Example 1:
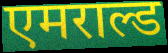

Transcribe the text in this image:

एमराल्‍ड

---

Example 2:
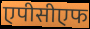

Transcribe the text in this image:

एपीसीएफ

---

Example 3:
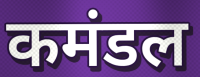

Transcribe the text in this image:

कमंडल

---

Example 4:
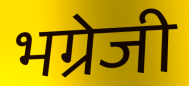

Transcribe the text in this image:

भग्रेजी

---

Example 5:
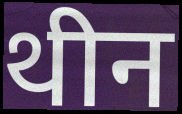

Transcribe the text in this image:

थीन